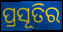
ପ୍ରସୂତିର